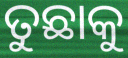
ତୁଛାକୁ